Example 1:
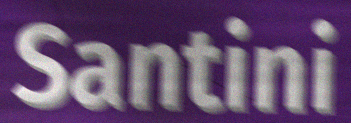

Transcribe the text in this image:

Santini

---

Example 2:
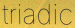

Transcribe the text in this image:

triadic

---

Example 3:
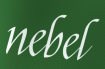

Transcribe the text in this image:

nebel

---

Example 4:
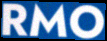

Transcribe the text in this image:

RMO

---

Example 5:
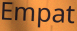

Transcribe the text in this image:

Empat